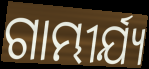
ଗାମ୍ଭୀର୍ଯ୍ୟ